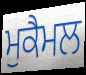
ਮੁਕੈਮਲ